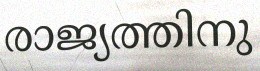
രാജ്യത്തിനു